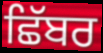
ਛਿੱਬਰ